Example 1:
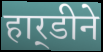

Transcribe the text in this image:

हार्डीने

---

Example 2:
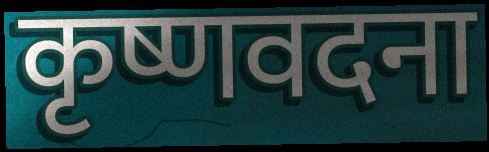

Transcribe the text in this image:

कृष्णवदना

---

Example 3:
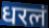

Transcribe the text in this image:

धरलं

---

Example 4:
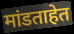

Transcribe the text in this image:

मांडताहेत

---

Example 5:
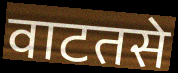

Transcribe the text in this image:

वाटतसे